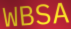
WBSA